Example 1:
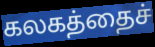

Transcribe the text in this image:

கலகத்தைச்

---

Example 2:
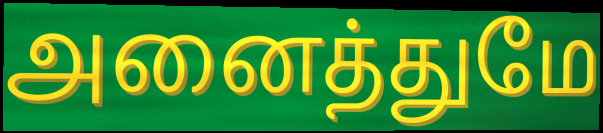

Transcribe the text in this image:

அனைத்துமே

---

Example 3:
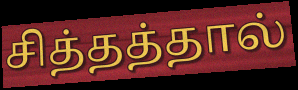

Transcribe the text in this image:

சித்தத்தால்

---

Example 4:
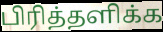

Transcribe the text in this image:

பிரித்தளிக்க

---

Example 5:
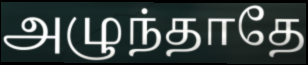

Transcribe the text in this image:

அழுந்தாதே